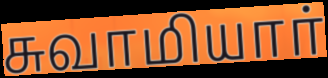
சுவாமியார்